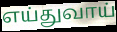
எய்துவாய்